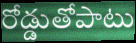
రోడ్డుతోపాటు